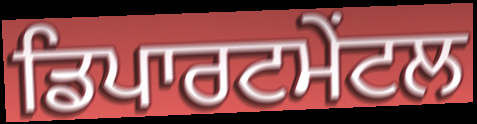
ਡਿਪਾਰਟਮੇਂਟਲ